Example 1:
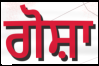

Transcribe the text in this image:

ਗੋਸ਼ਾ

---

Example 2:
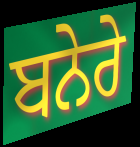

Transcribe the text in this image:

ਬਨੇਰੇ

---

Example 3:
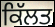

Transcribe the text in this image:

ਕਿੱਲਤ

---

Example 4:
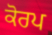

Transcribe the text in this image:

ਕੋਰਪ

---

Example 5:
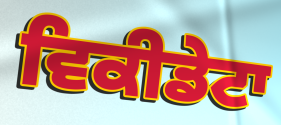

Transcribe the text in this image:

ਵਿਕੀਡੇਟਾ